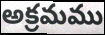
అక్రమము